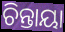
ଚିନ୍ତାୟା